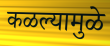
कळल्यामुळे